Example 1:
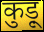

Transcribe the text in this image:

कुड़ू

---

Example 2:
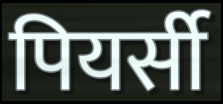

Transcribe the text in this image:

पियर्सी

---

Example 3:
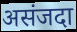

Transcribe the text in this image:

असंजदा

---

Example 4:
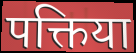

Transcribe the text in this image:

पक्तिया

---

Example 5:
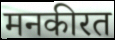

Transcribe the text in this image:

मनकीरत